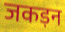
जकड़न